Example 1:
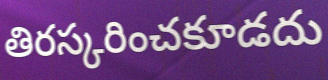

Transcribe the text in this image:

తిరస్కరించకూడదు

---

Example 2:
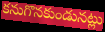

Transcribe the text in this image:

కనుగొనకుండునట్లు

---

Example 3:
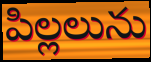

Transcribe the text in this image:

పిల్లలును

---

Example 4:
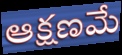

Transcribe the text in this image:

ఆక్షణమే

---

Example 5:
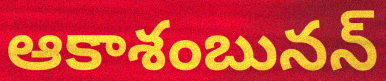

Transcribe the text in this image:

ఆకాశంబునన్